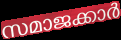
സമാജക്കാർ